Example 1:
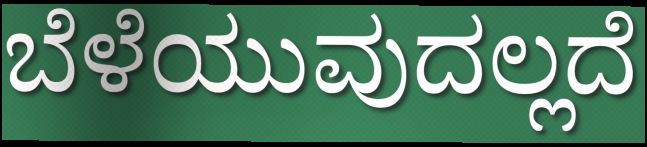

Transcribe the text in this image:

ಬೆಳೆಯುವುದಲ್ಲದೆ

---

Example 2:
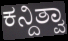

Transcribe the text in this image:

ಕನ್ದಿತ್ವಾ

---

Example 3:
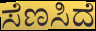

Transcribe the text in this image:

ಸೆಣಸಿದೆ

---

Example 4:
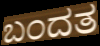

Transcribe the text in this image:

ಬಂದತ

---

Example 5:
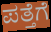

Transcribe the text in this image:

ಪತ್ತೆಗೆ